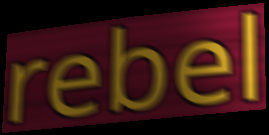
rebel